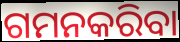
ଗମନକରିବା